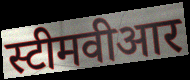
स्टीमवीआर